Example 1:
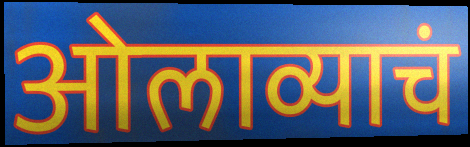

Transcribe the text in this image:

ओलाव्याचं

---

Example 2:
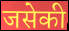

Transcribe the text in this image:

जसेकी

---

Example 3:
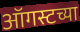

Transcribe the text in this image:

ऑगस्टच्या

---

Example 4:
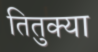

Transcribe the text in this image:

तितुक्या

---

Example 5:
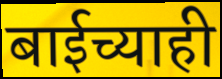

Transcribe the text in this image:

बाईच्याही